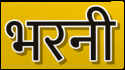
भरनी